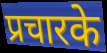
प्रचारके